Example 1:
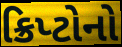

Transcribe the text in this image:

ક્રિપ્ટોનો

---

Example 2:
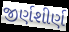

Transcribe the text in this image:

જીર્ણશીર્ણ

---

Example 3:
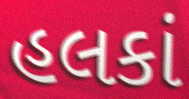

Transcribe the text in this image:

હલકાં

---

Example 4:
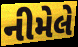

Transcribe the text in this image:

નીમેલે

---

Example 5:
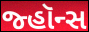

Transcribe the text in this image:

જ્હૉન્સ